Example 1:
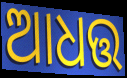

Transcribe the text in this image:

ଆଧତ୍ତ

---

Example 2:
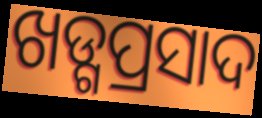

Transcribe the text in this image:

ଖଡ୍ଗପ୍ରସାଦ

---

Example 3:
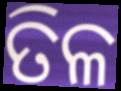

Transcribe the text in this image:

ତିଳ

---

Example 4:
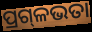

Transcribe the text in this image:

ପ୍ରଗ୍‍ଳଭତା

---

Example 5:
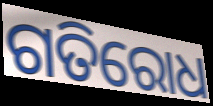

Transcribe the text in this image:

ଗତିରୋଧ